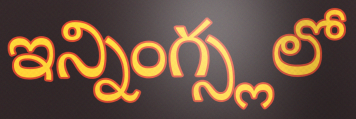
ఇన్నింగ్స్లలో